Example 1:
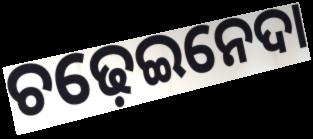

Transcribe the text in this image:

ଚଢ଼େଇନେଦା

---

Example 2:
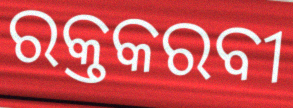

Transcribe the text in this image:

ରକ୍ତକରବୀ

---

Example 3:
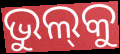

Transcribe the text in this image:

ଭୁଲ୍‍କୁ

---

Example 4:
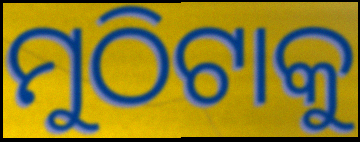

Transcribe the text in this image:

ମୁଠିଟାକୁ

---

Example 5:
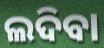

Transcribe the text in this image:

ଲଦିବା